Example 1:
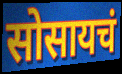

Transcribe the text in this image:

सोसायचं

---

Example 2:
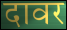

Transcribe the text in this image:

दावर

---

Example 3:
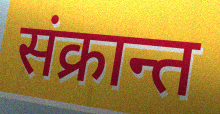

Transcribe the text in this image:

संक्रान्त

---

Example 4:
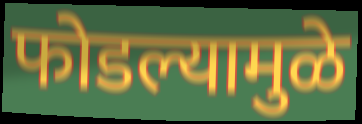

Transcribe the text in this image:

फोडल्यामुळे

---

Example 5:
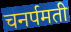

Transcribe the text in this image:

चनर्पमती